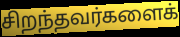
சிறந்தவர்களைக்